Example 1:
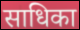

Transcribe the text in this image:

साधिका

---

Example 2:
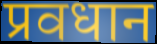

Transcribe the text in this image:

प्रवधान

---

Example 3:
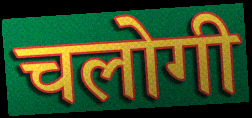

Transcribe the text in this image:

चलोगी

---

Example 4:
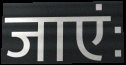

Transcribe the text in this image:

जाएंः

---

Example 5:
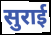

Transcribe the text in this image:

सुराई